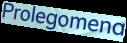
Prolegomena